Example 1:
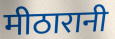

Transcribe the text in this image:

मीठारानी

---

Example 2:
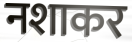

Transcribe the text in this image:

नशाकर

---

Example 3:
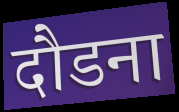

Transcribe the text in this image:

दौडना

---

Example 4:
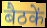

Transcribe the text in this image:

बैठकें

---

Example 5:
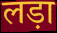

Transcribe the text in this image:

लड़ा